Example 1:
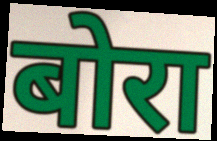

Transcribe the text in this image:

बोरा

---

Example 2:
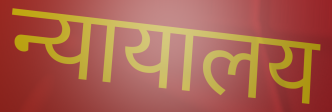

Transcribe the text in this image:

न्यायालय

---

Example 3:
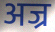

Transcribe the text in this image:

अज्र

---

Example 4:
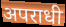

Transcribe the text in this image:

अपराधी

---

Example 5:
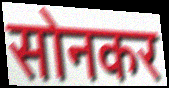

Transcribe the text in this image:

सोनकर